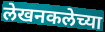
लेखनकलेच्या